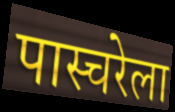
पास्चरेला